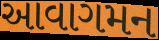
આવાગમન